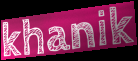
khanik